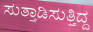
ಸುತ್ತಾಡಿಸುತ್ತಿದ್ದ